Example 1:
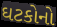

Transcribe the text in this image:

ઘટકોનો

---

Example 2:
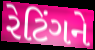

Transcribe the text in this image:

રેટિંગને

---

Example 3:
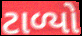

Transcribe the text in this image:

ટાળ્યો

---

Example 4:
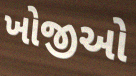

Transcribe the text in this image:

ખોજીઓ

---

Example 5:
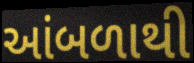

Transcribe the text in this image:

આંબળાથી